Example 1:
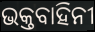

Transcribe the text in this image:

ଭକ୍ତବାହିନୀ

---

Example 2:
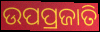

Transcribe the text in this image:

ଉପପ୍ରଜାତି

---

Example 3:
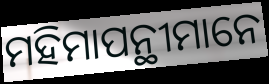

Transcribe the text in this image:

ମହିମାପନ୍ଥୀମାନେ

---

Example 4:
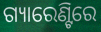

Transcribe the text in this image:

ଗ୍ୟାରେଣ୍ଟିରେ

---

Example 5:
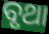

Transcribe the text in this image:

ବୃଥା